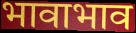
भावाभाव